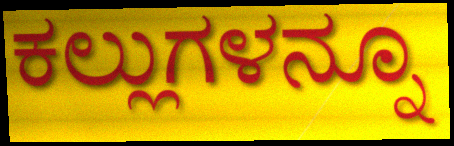
ಕಲ್ಲುಗಳನ್ನೂ